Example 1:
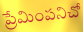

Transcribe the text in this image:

ప్రేమింపనిచో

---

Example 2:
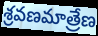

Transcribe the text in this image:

శ్రవణమాత్రేణ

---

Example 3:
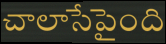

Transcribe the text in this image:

చాలాసేపైంది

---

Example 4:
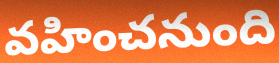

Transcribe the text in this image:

వహించనుంది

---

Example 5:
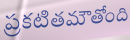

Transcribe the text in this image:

ప్రకటితమౌతోంది